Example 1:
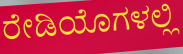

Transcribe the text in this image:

ರೇಡಿಯೊಗಳಲ್ಲಿ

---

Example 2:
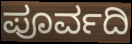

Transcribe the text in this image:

ಪೂರ್ವದಿ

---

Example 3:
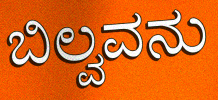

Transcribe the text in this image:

ಬಿಲ್ವವನು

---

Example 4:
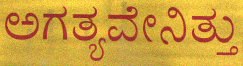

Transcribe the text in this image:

ಅಗತ್ಯವೇನಿತ್ತು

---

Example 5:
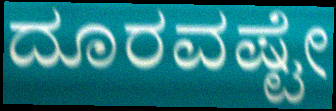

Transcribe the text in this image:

ದೂರವಷ್ಟೇ